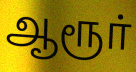
ஆரூர்